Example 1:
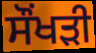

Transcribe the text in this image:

ਸੌਂਖੜੀ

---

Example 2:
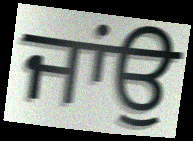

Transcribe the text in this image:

ਜਾਂਉ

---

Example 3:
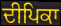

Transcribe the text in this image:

ਦੀਪਿਕਾ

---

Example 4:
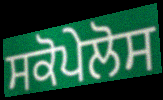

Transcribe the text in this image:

ਸਕੋਪੇਲੋਸ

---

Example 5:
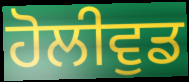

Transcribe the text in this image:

ਹੋਲੀਵੁਡ